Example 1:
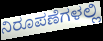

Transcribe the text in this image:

ನಿರೂಪಣೆಗಳಲ್ಲಿ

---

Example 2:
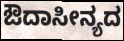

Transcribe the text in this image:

ಔದಾಸೀನ್ಯದ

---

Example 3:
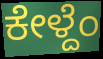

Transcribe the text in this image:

ಕೇಳ್ದೆಂ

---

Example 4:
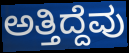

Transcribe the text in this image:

ಅತ್ತಿದ್ದೆವು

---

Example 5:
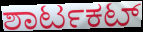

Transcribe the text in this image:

ಶಾರ್ಟಕಟ್